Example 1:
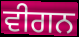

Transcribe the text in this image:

ਵੀਗਨ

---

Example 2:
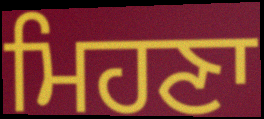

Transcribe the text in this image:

ਮਿਹਣਾ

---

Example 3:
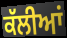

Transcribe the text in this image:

ਕੱਲੀਆਂ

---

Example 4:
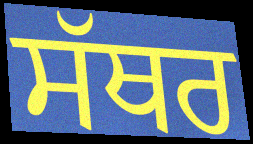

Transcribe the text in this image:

ਸੱਥਰ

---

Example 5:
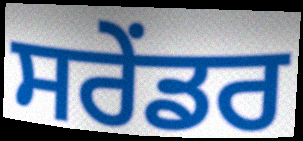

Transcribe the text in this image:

ਸਰੇਂਡਰ